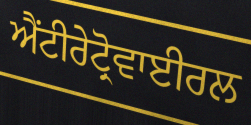
ਐਂਟੀਰੇਟ੍ਰੋਵਾਈਰਲ